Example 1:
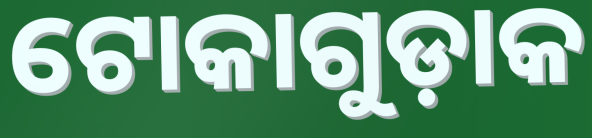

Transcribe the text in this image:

ଟୋକାଗୁଡ଼ାକ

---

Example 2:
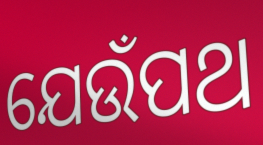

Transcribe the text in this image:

ଯେଉଁପଥ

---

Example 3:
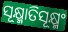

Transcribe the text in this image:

ସୂକ୍ଷ୍ମାତିସୂକ୍ଷ୍ମଂ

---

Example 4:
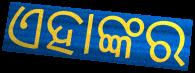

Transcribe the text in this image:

ଏହାଙ୍କର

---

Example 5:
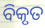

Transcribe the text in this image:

ବିକୃତ